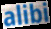
alibi